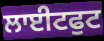
ਲਾਈਟਫੁਟ